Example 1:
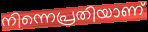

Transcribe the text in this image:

നിന്നെപ്രതിയാണ്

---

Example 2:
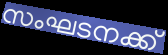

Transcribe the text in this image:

സംഘടനക്ക്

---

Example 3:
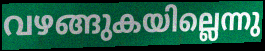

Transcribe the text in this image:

വഴങ്ങുകയില്ലെന്നു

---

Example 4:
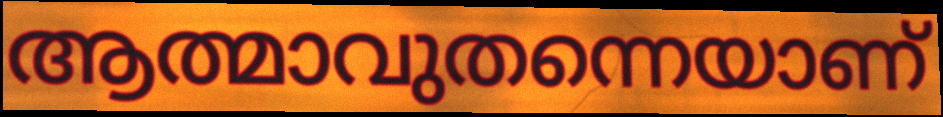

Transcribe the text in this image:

ആത്മാവുതന്നെയാണ്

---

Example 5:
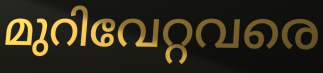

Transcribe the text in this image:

മുറിവേറ്റവരെ